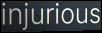
injurious